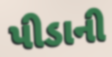
પીડાની